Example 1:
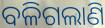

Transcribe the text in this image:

ବଳିଗଲାଣି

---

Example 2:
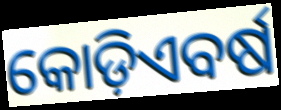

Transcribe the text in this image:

କୋଡ଼ିଏବର୍ଷ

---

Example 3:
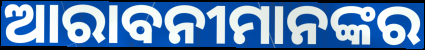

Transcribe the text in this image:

ଆରାବନୀମାନଙ୍କର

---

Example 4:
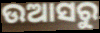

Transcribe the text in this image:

ଉଆସରୁ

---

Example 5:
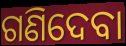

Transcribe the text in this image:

ଗଣିଦେବା